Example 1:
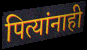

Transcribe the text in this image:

पित्यांनाही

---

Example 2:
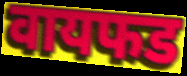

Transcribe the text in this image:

वायफड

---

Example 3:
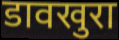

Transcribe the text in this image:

डावखुरा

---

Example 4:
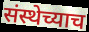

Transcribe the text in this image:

संस्थेच्याच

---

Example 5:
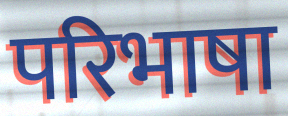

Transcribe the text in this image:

परिभाषा